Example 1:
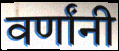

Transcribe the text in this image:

वर्णांनी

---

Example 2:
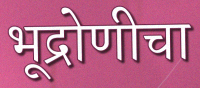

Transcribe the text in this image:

भूद्रोणीचा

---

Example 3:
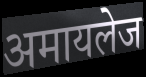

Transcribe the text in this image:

अमायलेज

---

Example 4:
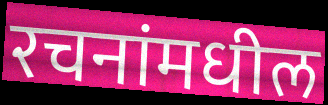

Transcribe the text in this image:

रचनांमधील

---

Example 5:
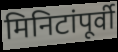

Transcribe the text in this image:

मिनिटांपूर्वी